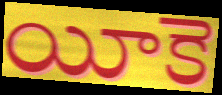
యీకె